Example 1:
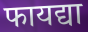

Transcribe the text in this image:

फायद्या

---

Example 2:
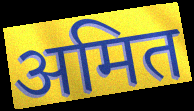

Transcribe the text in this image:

अमित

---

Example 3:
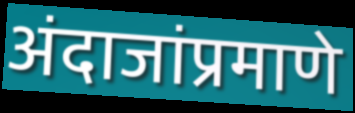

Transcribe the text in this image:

अंदाजांप्रमाणे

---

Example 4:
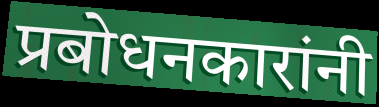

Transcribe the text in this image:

प्रबोधनकारांनी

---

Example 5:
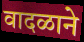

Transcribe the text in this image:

वादळाने